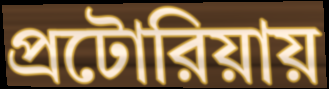
প্রটোরিয়ায়